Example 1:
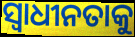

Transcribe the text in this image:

ସ୍ବାଧୀନତାକୁ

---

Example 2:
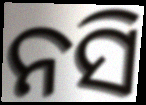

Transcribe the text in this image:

ନସି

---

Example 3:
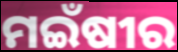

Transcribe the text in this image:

ମଇଁଷୀର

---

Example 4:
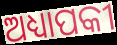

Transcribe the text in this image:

ଅଧ୍ୟାପକୀ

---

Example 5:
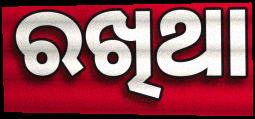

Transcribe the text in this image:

ରଖିଥା